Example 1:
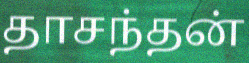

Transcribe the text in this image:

தாசந்தன்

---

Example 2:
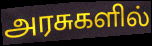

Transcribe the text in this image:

அரசுகளில்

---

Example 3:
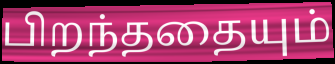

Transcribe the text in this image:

பிறந்ததையும்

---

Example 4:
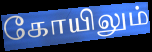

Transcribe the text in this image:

கோயிலும்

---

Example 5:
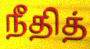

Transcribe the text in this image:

நீதித்